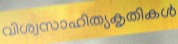
വിശ്വസാഹിത്യകൃതികൾ